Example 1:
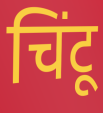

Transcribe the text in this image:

चिंटू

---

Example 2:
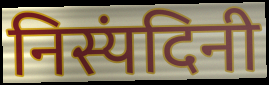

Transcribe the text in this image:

निस्यंदिनी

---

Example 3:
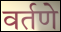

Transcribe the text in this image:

वर्तणे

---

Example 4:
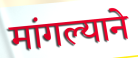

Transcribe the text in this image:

मांगल्याने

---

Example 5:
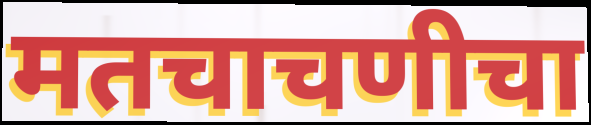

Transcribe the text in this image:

मतचाचणीचा